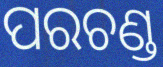
ପରଚଣ୍ଡ